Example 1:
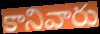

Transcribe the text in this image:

కానివారు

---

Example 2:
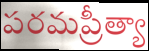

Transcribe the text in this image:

పరమప్రీత్యా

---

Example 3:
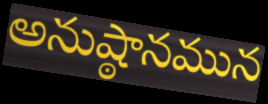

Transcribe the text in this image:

అనుష్ఠానమున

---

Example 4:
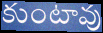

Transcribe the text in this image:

కుంటావు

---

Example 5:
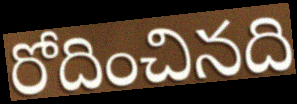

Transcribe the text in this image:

రోదించినది